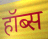
हॉब्स